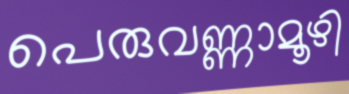
പെരുവണ്ണാമൂഴി